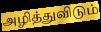
அழித்துவிடும்